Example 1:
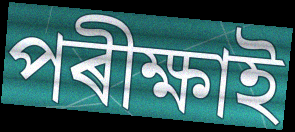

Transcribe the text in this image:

পৰীক্ষাই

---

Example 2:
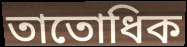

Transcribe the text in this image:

তাতোধিক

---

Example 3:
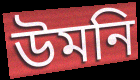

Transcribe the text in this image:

উমনি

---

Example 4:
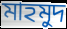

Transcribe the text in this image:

মাহমুদ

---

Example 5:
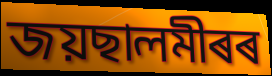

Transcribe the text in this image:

জয়ছালমীৰৰ